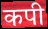
कपी